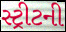
સ્ટ્રીટની